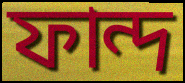
ফান্দ